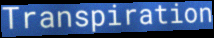
Transpiration